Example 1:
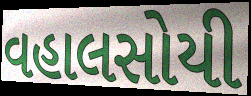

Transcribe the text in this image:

વહાલસોયી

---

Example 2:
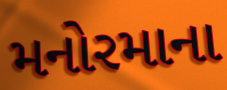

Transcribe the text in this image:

મનોરમાના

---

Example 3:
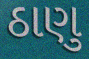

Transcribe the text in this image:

ઠાણુ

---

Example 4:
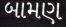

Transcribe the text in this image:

બામણ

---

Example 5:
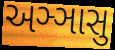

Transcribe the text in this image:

અઞ્ઞાસુ